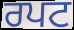
ਰਪਟ